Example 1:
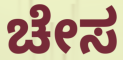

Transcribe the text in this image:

ಚೇಸ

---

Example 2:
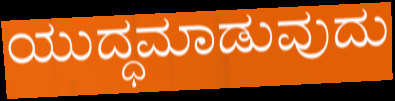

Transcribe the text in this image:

ಯುದ್ಧಮಾಡುವುದು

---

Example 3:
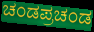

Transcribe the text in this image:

ಚಂಡಪ್ರಚಂಡ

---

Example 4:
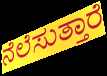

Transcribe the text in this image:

ನೆಲೆಸುತ್ತಾರೆ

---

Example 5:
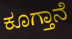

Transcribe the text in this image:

ಕೂಗ್ತಾನೆ